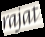
rajat